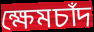
ক্ষেমচাঁদ